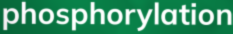
phosphorylation